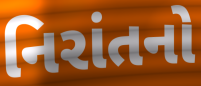
નિરાંતનો